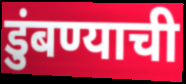
डुंबण्याची